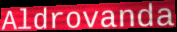
Aldrovanda